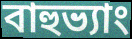
বাহুভ্যাং